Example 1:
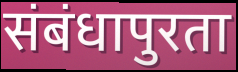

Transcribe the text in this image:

संबंधापुरता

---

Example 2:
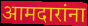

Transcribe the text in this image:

आमदारांना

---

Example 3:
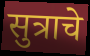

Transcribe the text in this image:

सुत्राचे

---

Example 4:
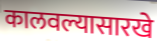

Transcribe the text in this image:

कालवल्यासारखे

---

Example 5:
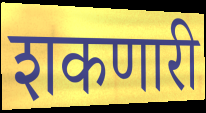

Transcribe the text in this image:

शकणारी